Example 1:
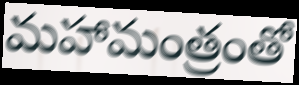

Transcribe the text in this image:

మహామంత్రంతో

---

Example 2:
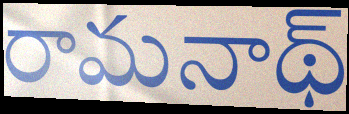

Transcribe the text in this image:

రామనాథ్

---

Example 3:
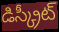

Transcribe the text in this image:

డిస్క్రీట్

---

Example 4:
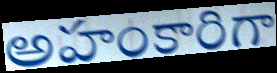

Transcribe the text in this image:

అహంకారిగా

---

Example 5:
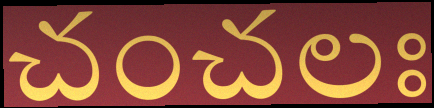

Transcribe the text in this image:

చంచలః